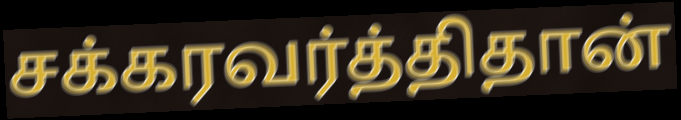
சக்கரவர்த்திதான்